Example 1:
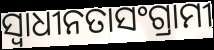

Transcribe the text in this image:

ସ୍ଵାଧୀନତାସଂଗ୍ରାମୀ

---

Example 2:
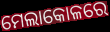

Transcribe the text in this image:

ମେଲାକୋଳରେ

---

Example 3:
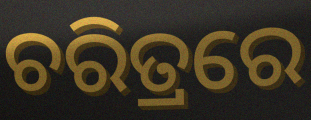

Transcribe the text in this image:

ଚରିତ୍ରରେ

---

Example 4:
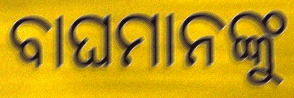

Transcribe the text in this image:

ବାଘମାନଙ୍କୁ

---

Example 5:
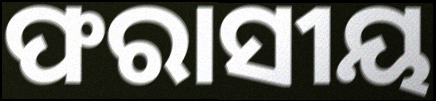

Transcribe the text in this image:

ଫରାସୀୟ